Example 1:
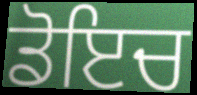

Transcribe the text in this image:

ਡੋਇਚ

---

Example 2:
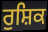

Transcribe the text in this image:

ਰੁਸ਼ਿਕ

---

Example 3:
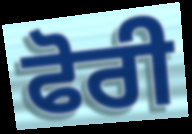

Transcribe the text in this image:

ਫੋਰੀ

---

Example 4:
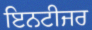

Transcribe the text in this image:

ਇਨਟੀਜਰ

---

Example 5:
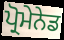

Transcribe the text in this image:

ਪ੍ਰੋਮੇਨੇਡ